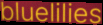
bluelilies